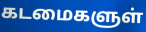
கடமைகளுள்